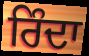
ਰਿੰਦਾ